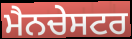
ਮੈਨਚੇਸਟਰ